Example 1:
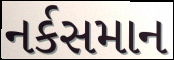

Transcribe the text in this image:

નર્કસમાન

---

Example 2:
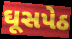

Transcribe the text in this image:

ઘૂસપેઠ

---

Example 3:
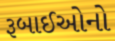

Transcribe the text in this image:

રૂબાઈઓનો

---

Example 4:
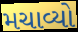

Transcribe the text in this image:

મચાવ્યો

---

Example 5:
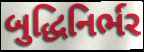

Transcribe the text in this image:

બુદ્ધિનિર્ભર